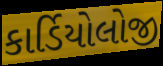
કાર્ડિયોલોજી